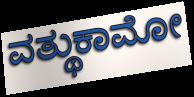
ವತ್ಥುಕಾಮೋ